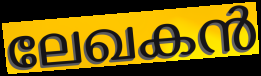
ലേഖകൻ